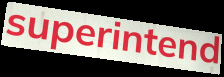
superintend